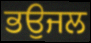
ਭਉਜਲ